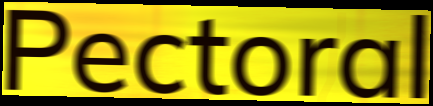
Pectoral